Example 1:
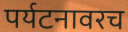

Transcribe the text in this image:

पर्यटनावरच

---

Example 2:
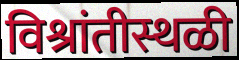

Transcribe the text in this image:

विश्रांतीस्थळी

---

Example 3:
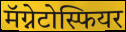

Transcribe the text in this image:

मॅग्नेटोस्फियर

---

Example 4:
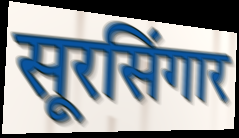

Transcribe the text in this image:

सूरसिंगार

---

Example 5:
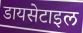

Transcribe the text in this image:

डायसेटाइल